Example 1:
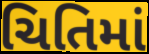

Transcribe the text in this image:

ચિતિમાં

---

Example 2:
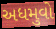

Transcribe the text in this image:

અધમુવો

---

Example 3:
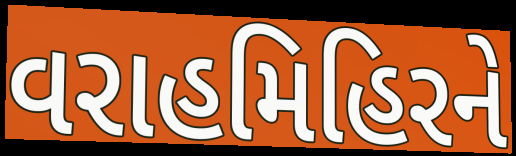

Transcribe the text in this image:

વરાહમિહિરને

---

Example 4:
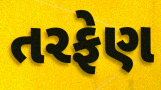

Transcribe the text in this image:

તરફેણ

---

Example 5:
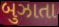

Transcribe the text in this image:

બુઝાતા